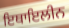
ਇਥਾਇਲੀਨ